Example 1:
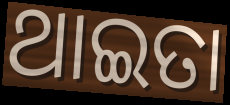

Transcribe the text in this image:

ଥାଇତା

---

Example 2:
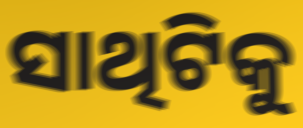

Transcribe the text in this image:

ସାଥିଟିକୁ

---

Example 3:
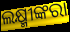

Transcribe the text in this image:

ଲକ୍ଷ୍ମୀଙ୍କରା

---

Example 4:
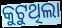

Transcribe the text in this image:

କୁଟୁଥିଲା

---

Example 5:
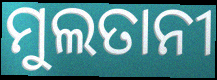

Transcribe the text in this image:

ମୁଲତାନୀ